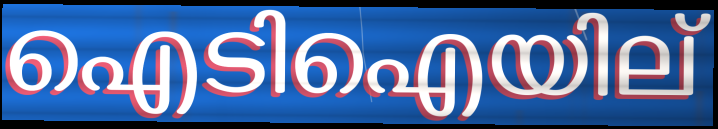
ഐടിഐയില്